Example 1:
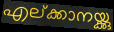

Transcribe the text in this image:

എല്ക്കാനയ്ക്കു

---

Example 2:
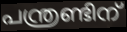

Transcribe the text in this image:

പന്ത്രണ്ടിന്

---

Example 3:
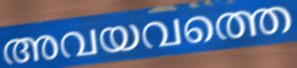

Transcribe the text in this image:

അവയവത്തെ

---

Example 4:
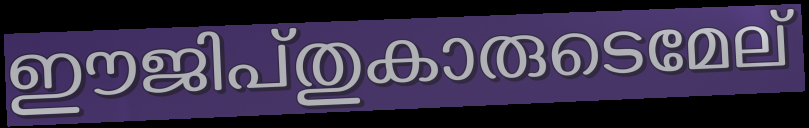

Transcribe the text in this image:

ഈജിപ്തുകാരുടെമേല്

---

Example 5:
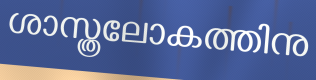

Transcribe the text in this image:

ശാസ്ത്രലോകത്തിനു